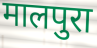
मालपुरा